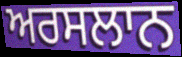
ਅਰਸਲਾਨ